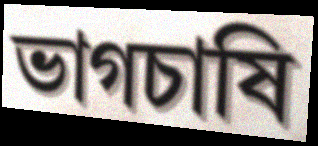
ভাগচাষি